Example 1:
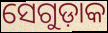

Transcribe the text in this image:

ସେଗୁଡ଼ାକ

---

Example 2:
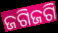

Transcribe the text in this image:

ଜଗିଜଗି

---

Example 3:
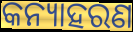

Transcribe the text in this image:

କନ୍ୟାହରଣ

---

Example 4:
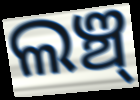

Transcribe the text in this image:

ଲଞ୍ଚ୍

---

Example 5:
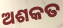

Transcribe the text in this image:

ଅଶକତ